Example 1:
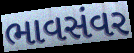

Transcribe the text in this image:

ભાવસંવર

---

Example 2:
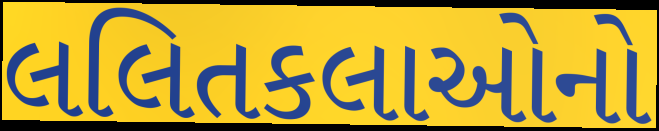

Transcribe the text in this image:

લલિતકલાઓનો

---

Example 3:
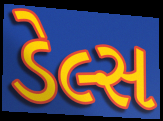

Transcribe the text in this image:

ડેલ્સ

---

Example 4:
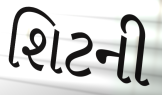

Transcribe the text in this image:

શિટની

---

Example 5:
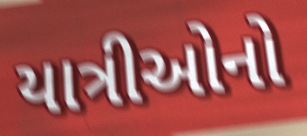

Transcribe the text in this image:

યાત્રીઓનો